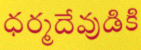
ధర్మదేవుడికి